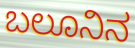
ಬಲೂನಿನ